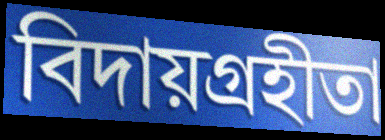
বিদায়গ্রহীতা